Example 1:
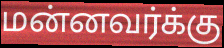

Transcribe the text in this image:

மன்னவர்க்கு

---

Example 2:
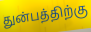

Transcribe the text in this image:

துன்பத்திற்கு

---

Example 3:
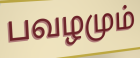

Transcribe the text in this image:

பவழமும்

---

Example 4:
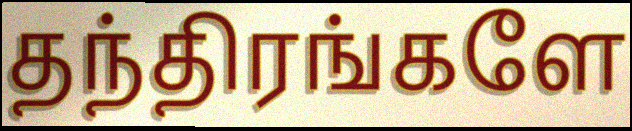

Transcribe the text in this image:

தந்திரங்களே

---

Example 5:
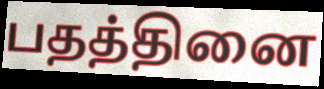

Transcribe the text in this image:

பதத்தினை